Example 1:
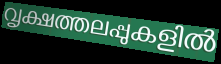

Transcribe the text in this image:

വൃക്ഷത്തലപ്പുകളിൽ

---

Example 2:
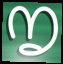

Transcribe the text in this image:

നൃ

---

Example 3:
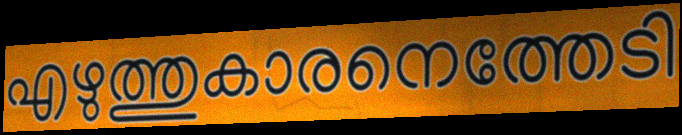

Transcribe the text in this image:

എഴുത്തുകാരനെത്തേടി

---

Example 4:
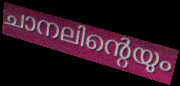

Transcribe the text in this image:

ചാനലിന്റെയും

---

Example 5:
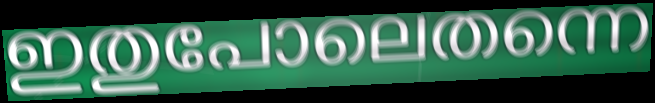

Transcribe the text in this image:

ഇതുപോലെതന്നെ